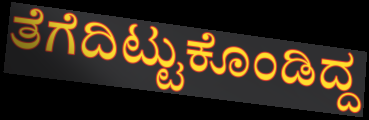
ತೆಗೆದಿಟ್ಟುಕೊಂಡಿದ್ದ